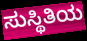
ಸುಸ್ಥಿತಿಯ